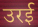
उरई